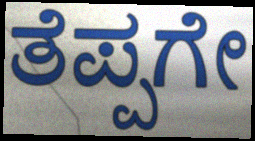
ತೆಪ್ಪಗೇ